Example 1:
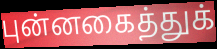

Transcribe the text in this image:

புன்னகைத்துக்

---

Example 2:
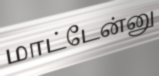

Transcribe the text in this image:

மாட்டேன்னு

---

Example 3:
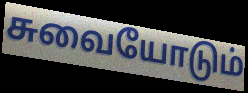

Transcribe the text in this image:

சுவையோடும்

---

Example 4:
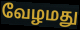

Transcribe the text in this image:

வேழமது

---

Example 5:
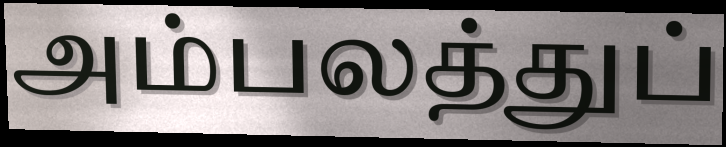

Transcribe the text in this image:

அம்பலத்துப்